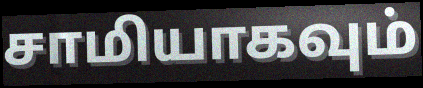
சாமியாகவும்